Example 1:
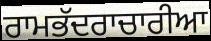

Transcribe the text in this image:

ਰਾਮਭੱਦਰਾਚਾਰੀਆ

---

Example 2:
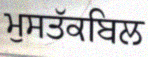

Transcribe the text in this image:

ਮੁਸਤੱਕਬਿਲ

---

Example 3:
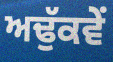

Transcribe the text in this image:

ਅਢੁੱਕਵੇਂ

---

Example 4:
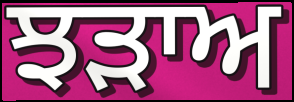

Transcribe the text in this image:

ਝੜਾਅ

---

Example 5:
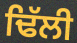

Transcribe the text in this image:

ਢਿੱਲੀ